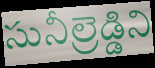
సునీల్రెడ్డిని